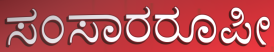
ಸಂಸಾರರೂಪೀ